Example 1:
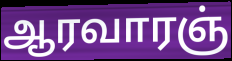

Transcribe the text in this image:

ஆரவாரஞ்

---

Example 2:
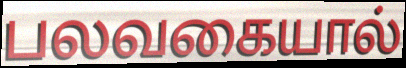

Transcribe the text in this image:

பலவகையால்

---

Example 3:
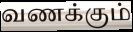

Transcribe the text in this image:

வணக்கும்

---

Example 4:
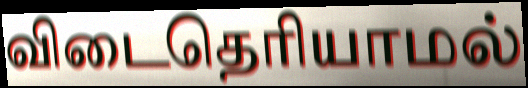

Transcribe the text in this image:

விடைதெரியாமல்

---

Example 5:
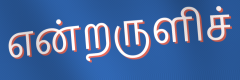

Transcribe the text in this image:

என்றருளிச்